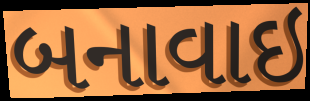
બનાવાઇ